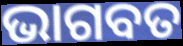
ଭାଗବତ